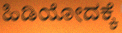
ಹಿಡಿಯೋದಕ್ಕೆ